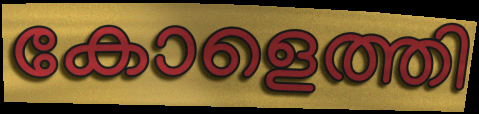
കോളെത്തി